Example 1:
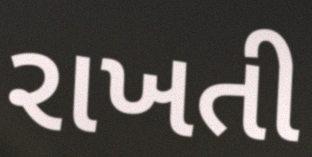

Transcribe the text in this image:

રાખતી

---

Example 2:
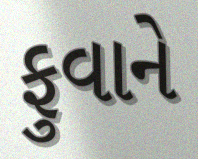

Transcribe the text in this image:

ફુવાને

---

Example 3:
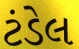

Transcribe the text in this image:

ટંડેલ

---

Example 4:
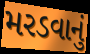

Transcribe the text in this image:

મરડવાનું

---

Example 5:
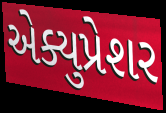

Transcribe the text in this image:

એક્યુપ્રેશર